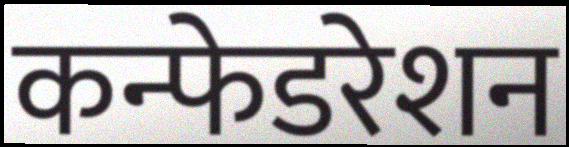
कन्‍फेडरेशन